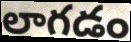
లాగడం